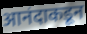
आनंदाकडून